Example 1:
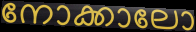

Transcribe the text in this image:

നോക്കാലോ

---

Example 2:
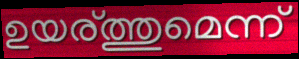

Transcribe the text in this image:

ഉയര്ത്തുമെന്ന്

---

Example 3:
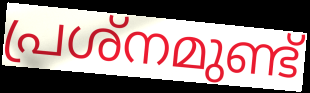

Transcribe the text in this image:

പ്രശ്നമുണ്ട്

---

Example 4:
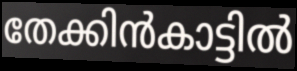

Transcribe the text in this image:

തേക്കിൻകാട്ടിൽ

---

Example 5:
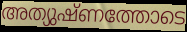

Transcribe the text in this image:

അത്യുഷ്ണത്തോടെ